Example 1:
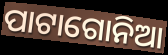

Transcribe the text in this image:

ପାଟାଗୋନିଆ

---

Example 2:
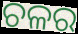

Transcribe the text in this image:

ଚଳର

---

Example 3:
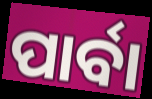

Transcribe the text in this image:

ପାର୍ବା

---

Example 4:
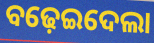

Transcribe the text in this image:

ବଢ଼େଇଦେଲା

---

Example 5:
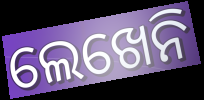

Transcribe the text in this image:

ଲେଖେନି